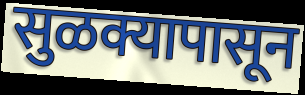
सुळक्यापासून